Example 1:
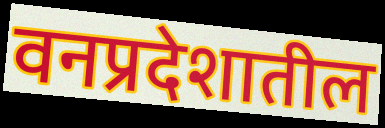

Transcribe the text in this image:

वनप्रदेशातील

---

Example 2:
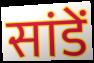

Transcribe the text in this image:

सांडें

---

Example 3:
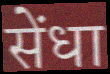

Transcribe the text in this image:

सेंधा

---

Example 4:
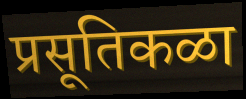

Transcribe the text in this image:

प्रसूतिकळा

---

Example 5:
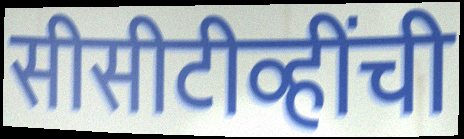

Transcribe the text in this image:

सीसीटीव्हींची